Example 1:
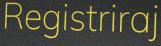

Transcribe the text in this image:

Registriraj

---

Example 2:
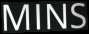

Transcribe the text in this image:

MINS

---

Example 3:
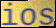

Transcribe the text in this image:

ios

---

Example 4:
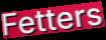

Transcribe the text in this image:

Fetters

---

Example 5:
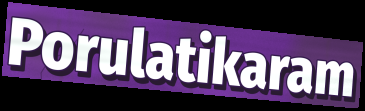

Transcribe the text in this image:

Porulatikaram